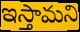
ఇస్తామని